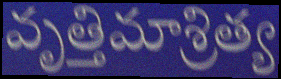
వృత్తిమాశ్రిత్య